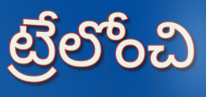
ట్రేలోంచి